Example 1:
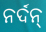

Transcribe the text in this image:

ନର୍ଦନ୍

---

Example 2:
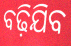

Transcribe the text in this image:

ବଢ଼ିଯିବ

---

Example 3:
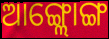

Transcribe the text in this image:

ଆଙ୍ଗ୍ଲୋଙ୍ଗ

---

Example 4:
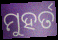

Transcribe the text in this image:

ମୁହର୍ତ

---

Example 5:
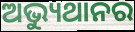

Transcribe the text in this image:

ଅଭ୍ୟୁଥାନର